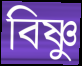
বিষ্ণু